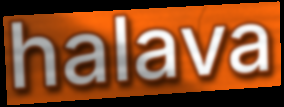
halava